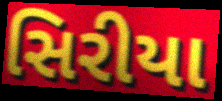
સિરીયા